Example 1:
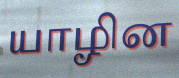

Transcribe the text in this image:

யாழின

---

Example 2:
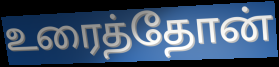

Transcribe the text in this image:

உரைத்தோன்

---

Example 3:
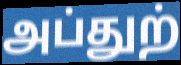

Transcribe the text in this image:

அப்துற்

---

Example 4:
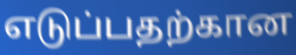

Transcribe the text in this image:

எடுப்பதற்கான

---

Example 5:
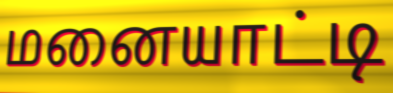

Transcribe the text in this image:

மனையாட்டி